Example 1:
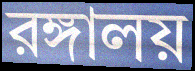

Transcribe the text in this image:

রঙ্গালয়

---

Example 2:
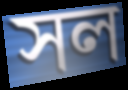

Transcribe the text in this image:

সল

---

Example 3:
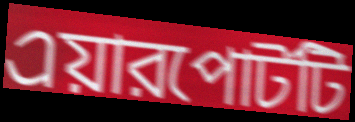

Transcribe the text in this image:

এয়ারপোর্টটি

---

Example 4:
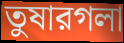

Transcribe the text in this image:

তুষারগলা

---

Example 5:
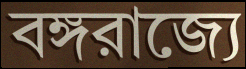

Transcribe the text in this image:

বঙ্গরাজ্যে